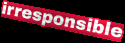
irresponsible